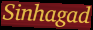
Sinhagad